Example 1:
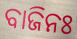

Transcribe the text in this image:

ବାଜିନଃ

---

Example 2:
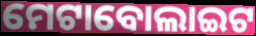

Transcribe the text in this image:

ମେଟାବୋଲାଇଟ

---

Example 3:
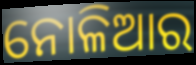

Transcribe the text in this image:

ନୋଳିଆର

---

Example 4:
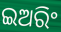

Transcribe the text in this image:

ଇଅରିଂ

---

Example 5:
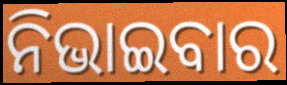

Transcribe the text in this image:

ନିଭାଇବାର